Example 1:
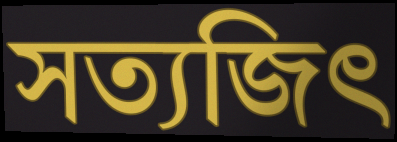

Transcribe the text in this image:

সত্যজিৎ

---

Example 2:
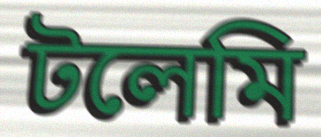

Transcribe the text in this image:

টলেমি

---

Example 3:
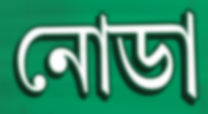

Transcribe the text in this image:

নোডা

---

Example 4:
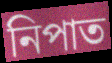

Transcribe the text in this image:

নিপাত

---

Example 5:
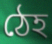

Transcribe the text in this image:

ঠেহ